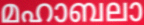
മഹാബലാ